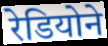
रेडियोने